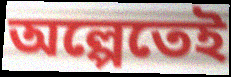
অল্পেতেই